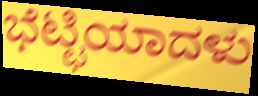
ಭೆಟ್ಟಿಯಾದಳು